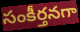
సంకీర్తనగా